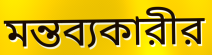
মন্তব্যকারীর